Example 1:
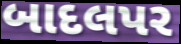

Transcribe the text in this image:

બાદલપર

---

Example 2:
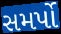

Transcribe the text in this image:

સમર્પો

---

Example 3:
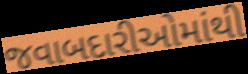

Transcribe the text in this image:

જવાબદારીઓમાંથી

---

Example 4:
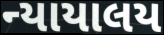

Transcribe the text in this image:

ન્યાયાલય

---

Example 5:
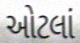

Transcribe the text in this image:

ઓટલાં